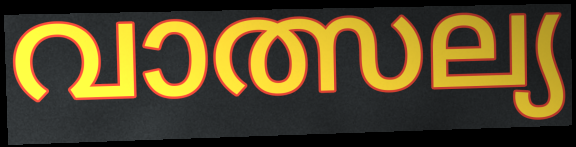
വാത്സല്യ